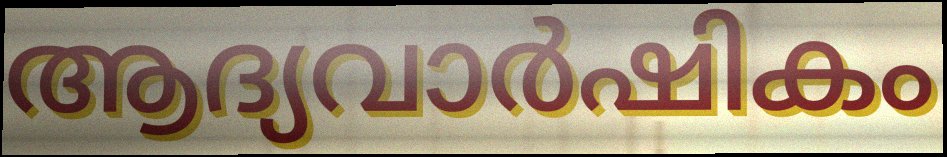
ആദ്യവാർഷികം